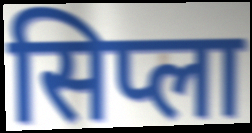
सिप्ला